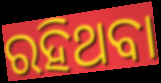
ରହିଥବା